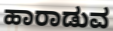
ಹಾರಾಡುವ